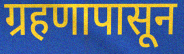
ग्रहणापासून